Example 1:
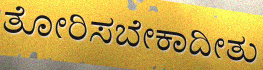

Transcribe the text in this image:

ತೋರಿಸಬೇಕಾದೀತು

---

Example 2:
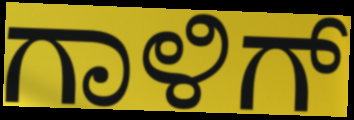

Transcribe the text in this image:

ಗಾಳಿಗ್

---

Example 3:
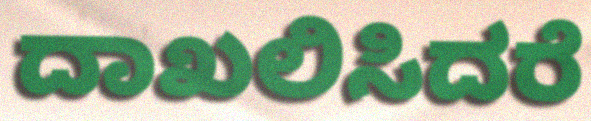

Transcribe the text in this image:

ದಾಖಲಿಸಿದರೆ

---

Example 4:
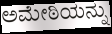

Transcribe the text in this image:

ಅಮೇಠಿಯನ್ನು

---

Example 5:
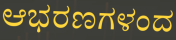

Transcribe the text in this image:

ಆಭರಣಗಳಂದ